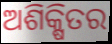
ଅଶିକ୍ଷିତର